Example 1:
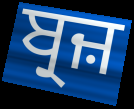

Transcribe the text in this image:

ਬ੍ਰਜ਼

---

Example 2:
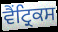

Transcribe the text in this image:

ਵੈਂਟ੍ਰਿਕਸ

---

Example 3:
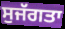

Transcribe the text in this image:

ਸੁਜੱਗਤਾ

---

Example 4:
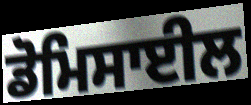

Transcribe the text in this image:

ਡੋਮਿਸਾਈਲ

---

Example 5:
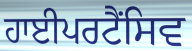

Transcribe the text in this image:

ਹਾਈਪਰਟੈਂਸਿਵ